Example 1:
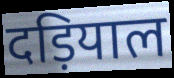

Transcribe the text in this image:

दड़ियाल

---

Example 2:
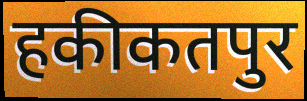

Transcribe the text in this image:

हकीकतपुर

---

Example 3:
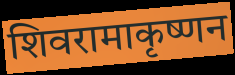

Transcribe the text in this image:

शिवरामाकृष्णन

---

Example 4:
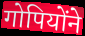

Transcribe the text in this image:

गोपियोंने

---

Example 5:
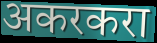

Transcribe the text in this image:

अकरकरा